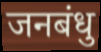
जनबंधु